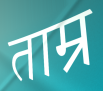
ताम्र